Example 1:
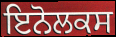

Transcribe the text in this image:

ਇਨੋਲਕਸ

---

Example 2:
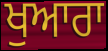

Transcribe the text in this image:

ਖੁਆਰਾ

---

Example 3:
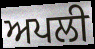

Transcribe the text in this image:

ਅਪਲੀ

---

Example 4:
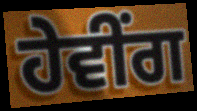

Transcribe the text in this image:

ਹੇਵੀੰਗ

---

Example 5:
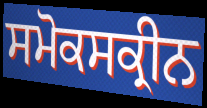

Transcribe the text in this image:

ਸਮੋਕਸਕ੍ਰੀਨ